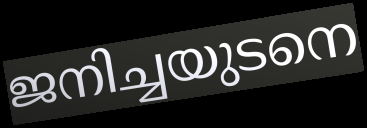
ജനിച്ചയുടനെ